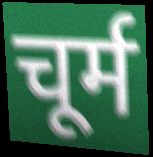
चूर्म